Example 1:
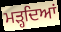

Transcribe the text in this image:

ਮੜ੍ਹਦਿਆਂ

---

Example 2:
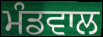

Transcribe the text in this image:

ਮੰਡਵਾਲ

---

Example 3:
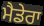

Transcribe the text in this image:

ਮੈਡੇਰਾ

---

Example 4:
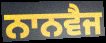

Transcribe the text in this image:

ਨਾਨਵੈਜ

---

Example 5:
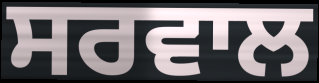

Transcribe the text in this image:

ਸਰਵਾਲ